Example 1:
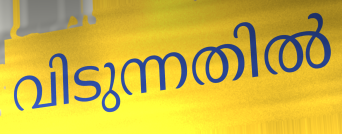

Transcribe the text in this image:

വിടുന്നതിൽ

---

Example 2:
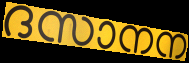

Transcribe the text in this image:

ദസാനന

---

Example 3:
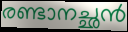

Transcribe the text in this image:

രണ്ടാനച്ഛൻ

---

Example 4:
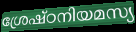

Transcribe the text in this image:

ശ്രേഷ്ഠനിയമസ്യ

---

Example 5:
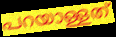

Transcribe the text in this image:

പറയാള്ളത്